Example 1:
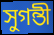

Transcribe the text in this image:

সুগন্তী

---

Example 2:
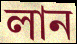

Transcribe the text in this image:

লান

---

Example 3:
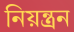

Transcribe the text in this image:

নিয়ন্ত্ৰন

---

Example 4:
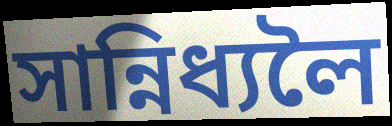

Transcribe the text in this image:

সান্নিধ্যলৈ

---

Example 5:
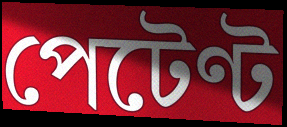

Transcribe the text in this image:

পেটেণ্ট